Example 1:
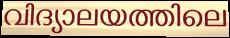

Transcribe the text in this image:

വിദ്യാലയത്തിലെ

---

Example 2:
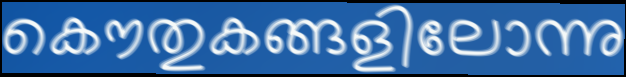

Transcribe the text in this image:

കൌതുകങ്ങളിലോന്നു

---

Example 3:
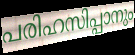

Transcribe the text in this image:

പരിഹസിപ്പാനും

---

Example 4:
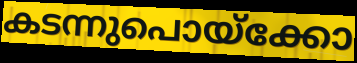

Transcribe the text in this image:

കടന്നുപൊയ്ക്കോ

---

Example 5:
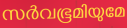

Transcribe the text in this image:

സർവഭൂമിയുമേ